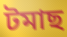
টমাছ